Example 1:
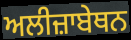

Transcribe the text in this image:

ਅਲੀਜ਼ਾਬੇਥਨ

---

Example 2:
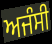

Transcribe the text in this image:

ਅਜੰਸੀ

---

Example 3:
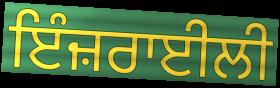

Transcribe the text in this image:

ਇੰਜ਼ਰਾਈਲੀ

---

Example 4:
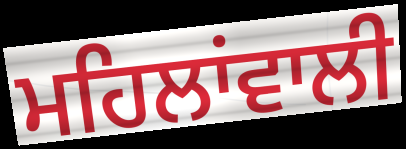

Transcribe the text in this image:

ਮਹਿਲਾਂਵਾਲੀ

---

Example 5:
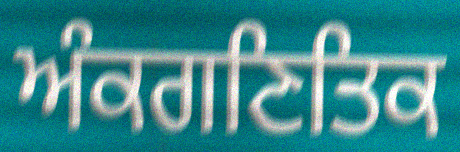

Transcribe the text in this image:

ਅੰਕਗਣਿਤਿਕ